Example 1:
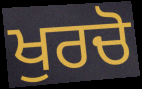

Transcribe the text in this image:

ਖੁਰਚੋ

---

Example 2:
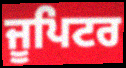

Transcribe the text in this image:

ਜੂਪਿਟਰ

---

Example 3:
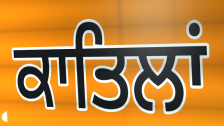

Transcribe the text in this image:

ਕਾਤਿਲਾਂ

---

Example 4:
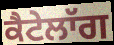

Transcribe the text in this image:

ਕੈਟੇਲਾੱਗ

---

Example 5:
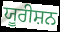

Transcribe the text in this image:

ਯੂਰੀਸ਼ਨ